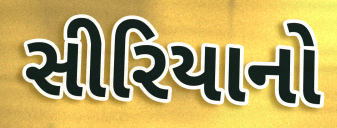
સીરિયાનો